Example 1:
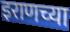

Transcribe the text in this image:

इराणच्या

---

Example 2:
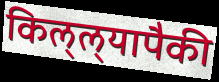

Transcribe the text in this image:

किल्ल्यापैकी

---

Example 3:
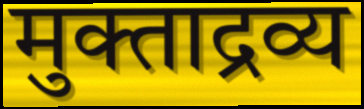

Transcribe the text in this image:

मुक्ताद्रव्य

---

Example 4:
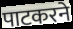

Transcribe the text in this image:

पाटकरने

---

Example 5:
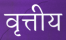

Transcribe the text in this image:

वृत्तीय